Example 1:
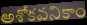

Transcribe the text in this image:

అశోకవనికాం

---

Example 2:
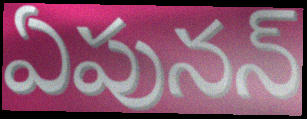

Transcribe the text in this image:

ఏపునన్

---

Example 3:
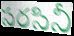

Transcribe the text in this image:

సరసినీ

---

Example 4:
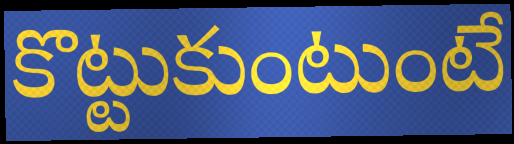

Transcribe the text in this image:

కొట్టుకుంటుంటే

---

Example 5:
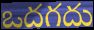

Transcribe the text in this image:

ఒదగదు